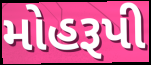
મોહરૂપી